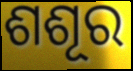
ଶଶୂର